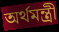
অর্থমন্ত্রী